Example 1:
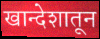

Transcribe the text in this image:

खान्देशातून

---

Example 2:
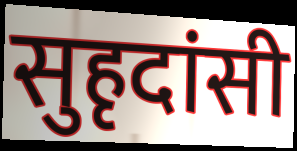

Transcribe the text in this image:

सुहृदांसी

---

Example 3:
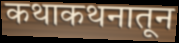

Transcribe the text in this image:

कथाकथनातून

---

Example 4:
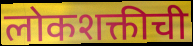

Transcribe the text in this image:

लोकशक्तीची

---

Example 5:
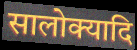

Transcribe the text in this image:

सालोक्यादि